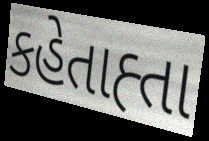
કહેતાહ્તા